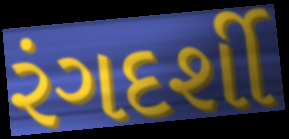
રંગદર્શી